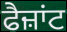
ਫੈਜ਼ਾਂਟ